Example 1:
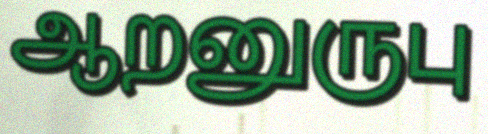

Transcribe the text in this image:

ஆறனுருபு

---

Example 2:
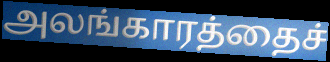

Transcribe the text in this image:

அலங்காரத்தைச்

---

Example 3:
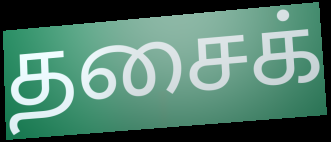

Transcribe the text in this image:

தசைக்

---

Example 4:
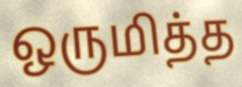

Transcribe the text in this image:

ஒருமித்த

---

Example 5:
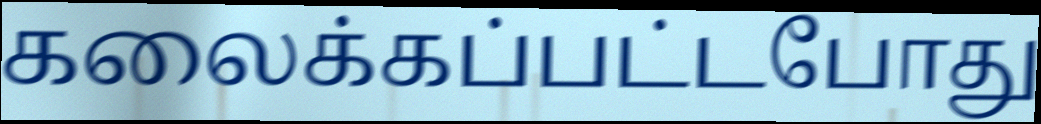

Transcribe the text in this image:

கலைக்கப்பட்டபோது